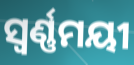
ସ୍ୱର୍ଣ୍ଣମୟୀ